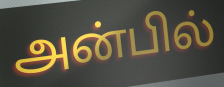
அன்பில்